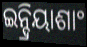
ଇନ୍ଦ୍ରିୟାଶାଂ